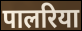
पालरिया